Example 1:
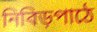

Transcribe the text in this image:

নিবিড়পাঠে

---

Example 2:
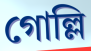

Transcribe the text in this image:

গোল্লি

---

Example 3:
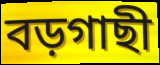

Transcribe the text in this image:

বড়গাছী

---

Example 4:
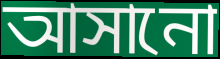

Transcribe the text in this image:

আসানো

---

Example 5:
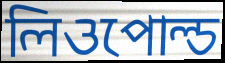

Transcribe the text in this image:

লিওপোল্ড